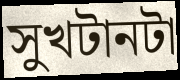
সুখটানটা